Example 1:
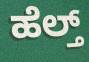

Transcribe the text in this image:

ಹೆಲ್ತ್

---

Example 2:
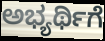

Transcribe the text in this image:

ಅಭ್ಯರ್ಥಿಗೆ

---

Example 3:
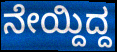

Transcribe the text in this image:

ನೇಯ್ದಿದ್ದ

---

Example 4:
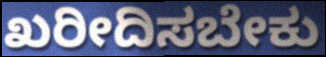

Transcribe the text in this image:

ಖರೀದಿಸಬೇಕು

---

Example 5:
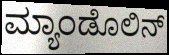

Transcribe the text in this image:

ಮ್ಯಾಂಡೊಲಿನ್